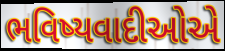
ભવિષ્યવાદીઓએ